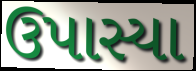
ઉપાસ્યા